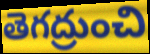
తెగద్రుంచి